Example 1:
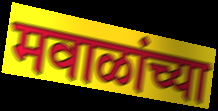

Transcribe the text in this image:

मवाळांच्या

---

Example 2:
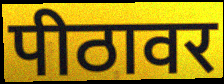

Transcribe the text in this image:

पीठावर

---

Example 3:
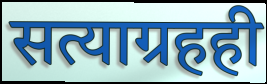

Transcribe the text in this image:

सत्याग्रहही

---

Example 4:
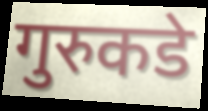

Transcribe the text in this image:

गुरुकडे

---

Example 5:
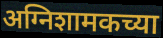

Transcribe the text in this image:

अग्निशामकच्या